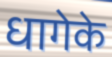
धागेके